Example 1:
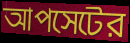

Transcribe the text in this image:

আপসেটের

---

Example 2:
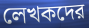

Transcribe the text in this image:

লেখকদের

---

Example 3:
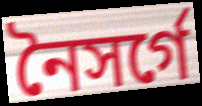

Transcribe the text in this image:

নৈসর্গে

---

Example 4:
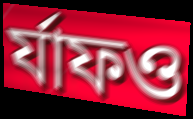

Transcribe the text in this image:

র্যাফও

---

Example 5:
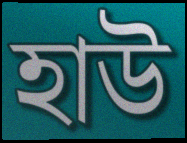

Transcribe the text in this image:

হাউ